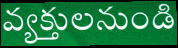
వ్యక్తులనుండి